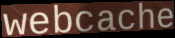
webcache